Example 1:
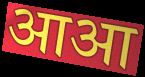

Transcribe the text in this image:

आआ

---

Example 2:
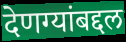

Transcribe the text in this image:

देणग्यांबद्दल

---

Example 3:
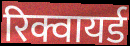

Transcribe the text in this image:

रिक्वायर्ड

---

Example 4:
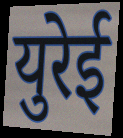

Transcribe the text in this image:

युरेई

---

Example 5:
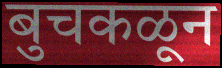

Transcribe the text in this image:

बुचकळून